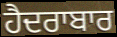
ਹੈਦਰਾਬਾਰ